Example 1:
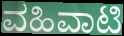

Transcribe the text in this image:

ವಹಿವಾಟಿ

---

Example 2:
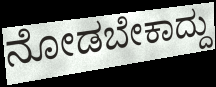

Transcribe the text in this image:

ನೋಡಬೇಕಾದ್ದು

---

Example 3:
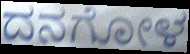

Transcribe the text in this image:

ದನಗೋಳ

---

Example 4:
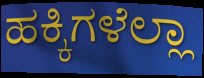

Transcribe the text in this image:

ಹಕ್ಕಿಗಳೆಲ್ಲಾ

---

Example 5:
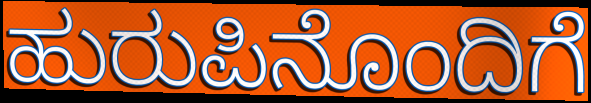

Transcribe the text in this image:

ಹುರುಪಿನೊಂದಿಗೆ